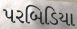
પરબિડિયા